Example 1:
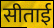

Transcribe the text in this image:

सीताई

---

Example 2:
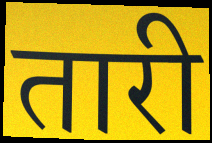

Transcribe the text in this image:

तारी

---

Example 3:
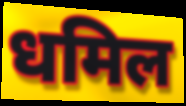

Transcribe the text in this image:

धमिल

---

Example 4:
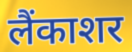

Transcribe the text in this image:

लैंकाशर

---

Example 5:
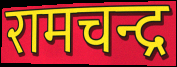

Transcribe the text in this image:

रामचन्‍द्र